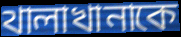
থালাখানাকে